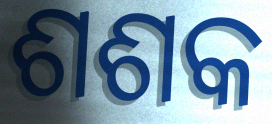
ଶଶକ